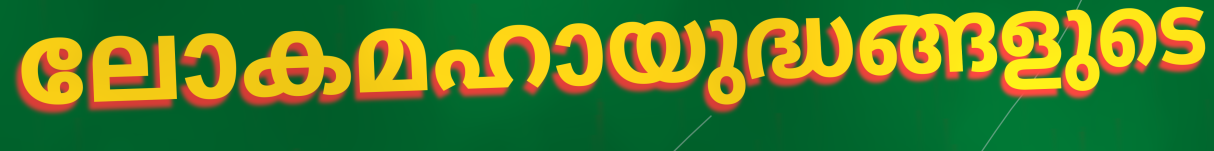
ലോകമഹായുദ്ധങ്ങളുടെ